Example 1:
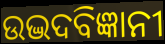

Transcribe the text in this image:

ଉଦ୍ଭଦବିଜ୍ଞାନୀ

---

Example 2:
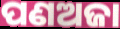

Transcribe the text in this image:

ପଣଅଜା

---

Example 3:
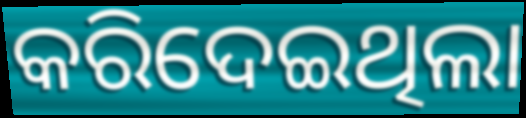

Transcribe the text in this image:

କରିଦେଇଥିଲା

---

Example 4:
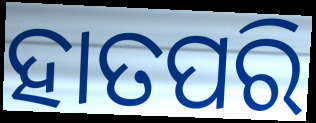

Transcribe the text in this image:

ହାତପରି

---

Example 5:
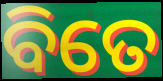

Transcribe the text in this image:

ବିତେ